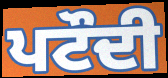
ਪਟੌਦੀ